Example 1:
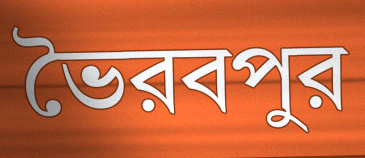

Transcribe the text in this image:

ভৈরবপুর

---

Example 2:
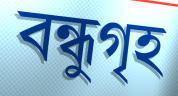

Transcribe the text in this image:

বন্ধুগৃহ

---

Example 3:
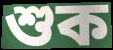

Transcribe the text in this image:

শুক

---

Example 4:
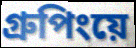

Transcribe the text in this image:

গ্রুপিংয়ে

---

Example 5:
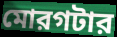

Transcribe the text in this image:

মোরগটার